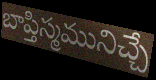
బాప్తిస్మమునిచ్చే